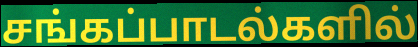
சங்கப்பாடல்களில்